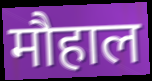
मौहाल